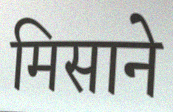
मिसाने